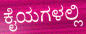
ಕೈಯಗಳಲ್ಲಿ